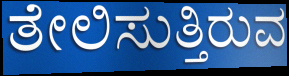
ತೇಲಿಸುತ್ತಿರುವ